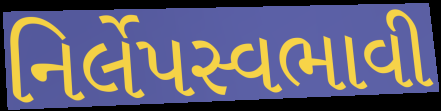
નિર્લેપસ્વભાવી